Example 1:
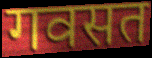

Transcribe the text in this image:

गवसत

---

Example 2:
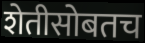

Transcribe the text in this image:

शेतीसोबतच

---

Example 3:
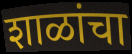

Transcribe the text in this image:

शाळांचा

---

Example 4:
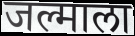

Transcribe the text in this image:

जल्माला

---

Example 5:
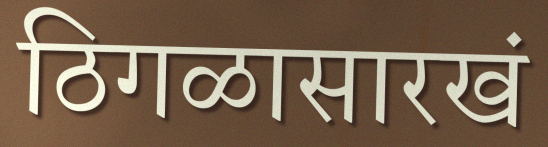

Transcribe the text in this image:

ठिगळासारखं